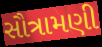
સૌત્રામણી